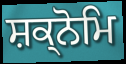
ਸ਼ਕ੍ਨੋਮਿ